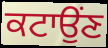
ਕਟਾਉਂਣ